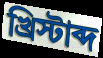
খ্রিস্টাব্দ